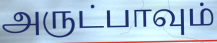
அருட்பாவும்